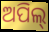
ଅପିଲ୍